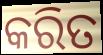
କରିତ